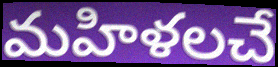
మహిళలచే